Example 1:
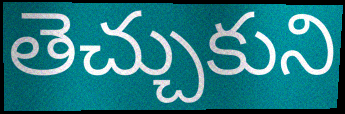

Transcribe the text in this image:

తెచ్చుకుని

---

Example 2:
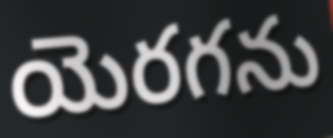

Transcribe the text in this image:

యెరగను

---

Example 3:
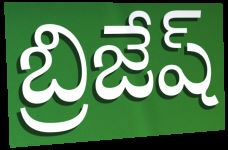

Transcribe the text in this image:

బ్రిజేష్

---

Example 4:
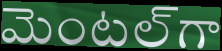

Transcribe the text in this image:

మెంటల్‌గా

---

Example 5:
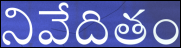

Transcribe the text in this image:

నివేదితం